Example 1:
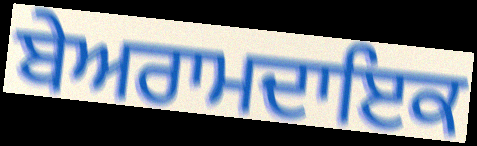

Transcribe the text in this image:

ਬੇਅਰਾਮਦਾਇਕ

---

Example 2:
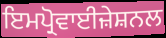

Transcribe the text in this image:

ਇਮਪ੍ਰੋਵਾਈਜ਼ੇਸ਼ਨਲ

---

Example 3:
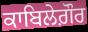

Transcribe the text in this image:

ਕਾਬਿਲੇਗ਼ੌਰ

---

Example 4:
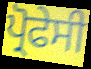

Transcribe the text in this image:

ਪ੍ਰੋਫੇਸੀ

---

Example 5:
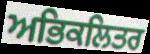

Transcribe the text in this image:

ਅਭਿਕਲਿਤਰ